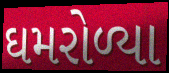
ઘમરોળ્યા